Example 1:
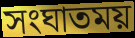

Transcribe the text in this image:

সংঘাতময়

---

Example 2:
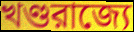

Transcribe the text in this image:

খণ্ডরাজ্যে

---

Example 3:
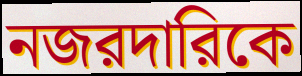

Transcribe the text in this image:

নজরদারিকে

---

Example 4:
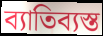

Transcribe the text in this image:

ব্যাতিব্যস্ত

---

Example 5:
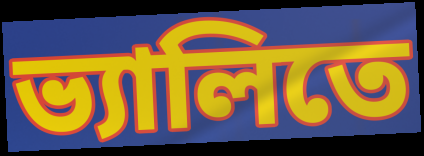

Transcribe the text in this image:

ভ্যালিতে